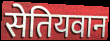
सेतियवान